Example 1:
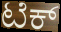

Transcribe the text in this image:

ಟೆಕ್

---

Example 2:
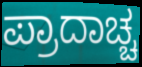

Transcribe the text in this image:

ಪ್ರಾದಾಚ್ಚ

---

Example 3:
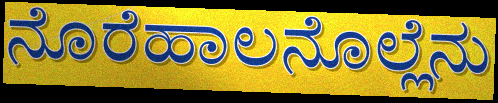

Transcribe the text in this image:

ನೊರೆಹಾಲನೊಲ್ಲೆನು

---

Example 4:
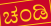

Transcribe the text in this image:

ಚಂಡಿ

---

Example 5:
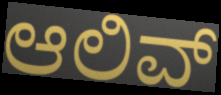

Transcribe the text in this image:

ಆಲಿವ್